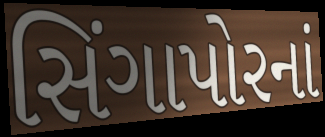
સિંગાપોરનાં